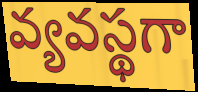
వ్యవస్థగా